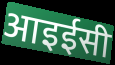
आइईसी